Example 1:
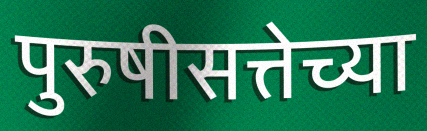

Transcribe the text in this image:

पुरुषीसत्तेच्या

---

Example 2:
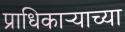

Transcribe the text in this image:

प्राधिकाऱ्याच्या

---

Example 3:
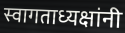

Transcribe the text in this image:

स्वागताध्यक्षांनी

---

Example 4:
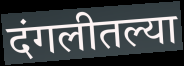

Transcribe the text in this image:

दंगलीतल्या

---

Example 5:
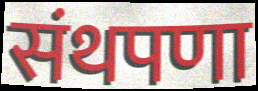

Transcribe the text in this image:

संथपणा